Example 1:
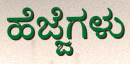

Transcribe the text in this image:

ಹೆಜ್ಜೆಗಳು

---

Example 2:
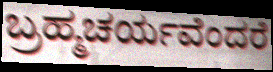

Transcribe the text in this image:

ಬ್ರಹ್ಮಚರ್ಯವೆಂದರೆ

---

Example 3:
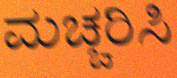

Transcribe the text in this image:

ಮಚ್ಚರಿಸಿ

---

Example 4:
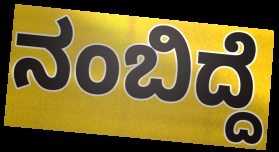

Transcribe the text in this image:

ನಂಬಿದ್ದೆ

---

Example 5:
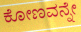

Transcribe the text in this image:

ಕೋಣವನ್ನೇ